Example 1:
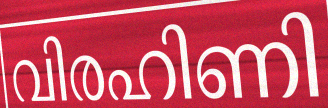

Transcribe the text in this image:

വിരഹിണി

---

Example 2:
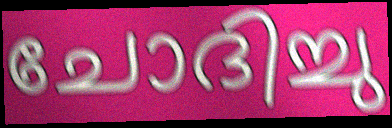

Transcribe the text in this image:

ചോദിച്ചു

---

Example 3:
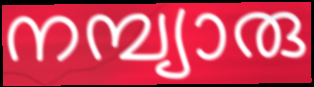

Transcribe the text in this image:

നമ്പ്യാരു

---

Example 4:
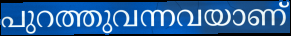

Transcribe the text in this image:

പുറത്തുവന്നവയാണ്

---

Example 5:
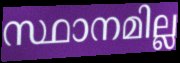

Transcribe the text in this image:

സ്ഥാനമില്ല